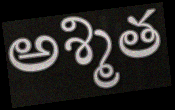
అశ్మిత